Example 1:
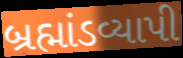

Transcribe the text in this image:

બ્રહ્માંડવ્યાપી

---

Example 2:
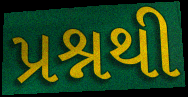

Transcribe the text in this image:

પ્રશ્નથી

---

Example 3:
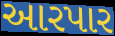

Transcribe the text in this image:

આરપાર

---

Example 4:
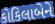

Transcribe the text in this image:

કોકિલાબેને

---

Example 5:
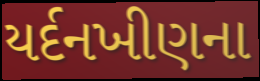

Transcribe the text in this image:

યર્દનખીણના